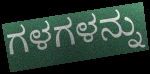
ಗಳಗಳನ್ನು